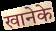
खानेके